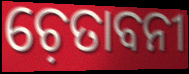
ଚ଼େତାବନୀ